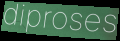
diproses